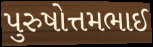
પુરુષોત્તમભાઈ